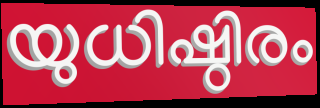
യുധിഷ്ഠിരം